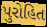
પુરોહિત